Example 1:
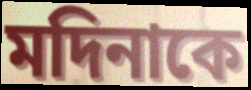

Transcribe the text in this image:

মদিনাকে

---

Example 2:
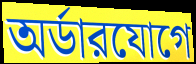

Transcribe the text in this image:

অর্ডারযোগে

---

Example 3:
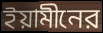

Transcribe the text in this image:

ইয়ামীনের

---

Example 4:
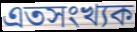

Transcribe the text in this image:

এতসংখ্যক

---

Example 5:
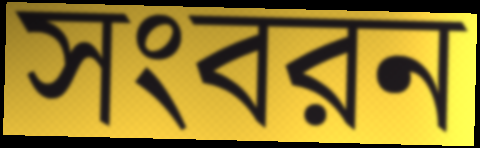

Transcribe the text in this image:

সংবরন